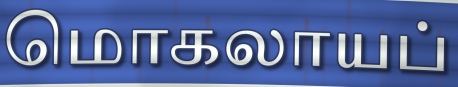
மொகலாயப்